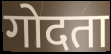
गोदता